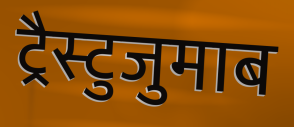
ट्रैस्टुजुमाब